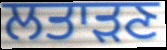
ਲਤਾੜਣ